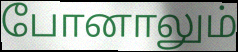
போனாலும்